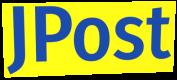
JPost